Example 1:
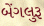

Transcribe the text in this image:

બેંગલુરૂ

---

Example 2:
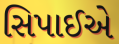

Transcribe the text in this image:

સિપાઈએ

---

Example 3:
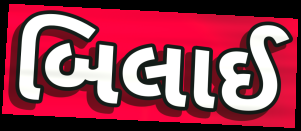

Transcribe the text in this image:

બિલાઈ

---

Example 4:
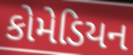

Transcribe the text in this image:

કોમેડિયન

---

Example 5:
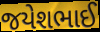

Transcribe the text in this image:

જયેશભાઈ